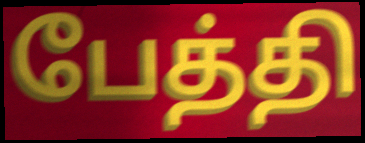
பேத்தி